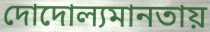
দোদোল্যমানতায়